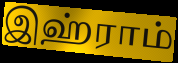
இஹ்ராம்